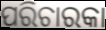
ପରିଚାରକା